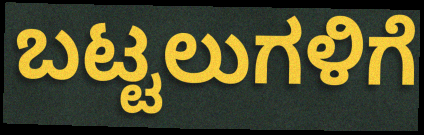
ಬಟ್ಟಲುಗಳಿಗೆ